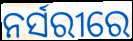
ନର୍ସରୀରେ